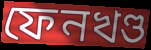
ফেনখণ্ড